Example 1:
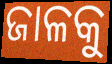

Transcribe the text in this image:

ଜାଳକୁ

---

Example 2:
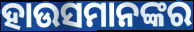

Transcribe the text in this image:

ହାଉସମାନଙ୍କର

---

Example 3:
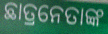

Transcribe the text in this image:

ଛାତ୍ରନେତାଙ୍କ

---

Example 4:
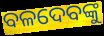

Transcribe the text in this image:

ବଳଦେବଙ୍କୁ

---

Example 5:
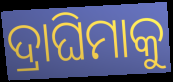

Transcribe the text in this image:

ଦ୍ରାଘିମାକୁ